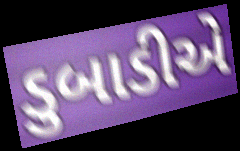
ડુબાડીએ